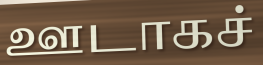
ஊடாகச்